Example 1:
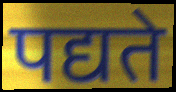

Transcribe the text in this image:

पद्यते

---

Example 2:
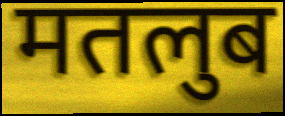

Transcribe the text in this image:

मतलुब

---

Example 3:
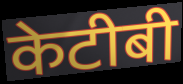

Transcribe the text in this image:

केटीबी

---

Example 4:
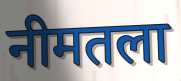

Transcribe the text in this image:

नीमतला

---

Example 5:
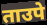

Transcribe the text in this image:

ताउपे